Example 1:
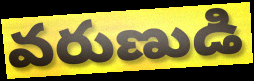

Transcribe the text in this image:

వరుణుడి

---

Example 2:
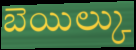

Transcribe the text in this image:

బెయిల్కు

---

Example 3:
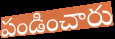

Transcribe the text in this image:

పండించారు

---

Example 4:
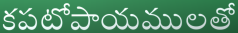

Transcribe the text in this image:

కపటోపాయములతో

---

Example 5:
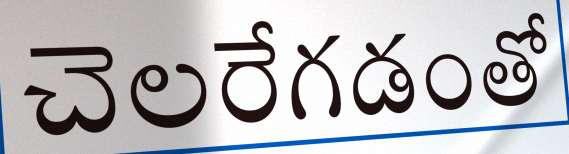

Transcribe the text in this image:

చెలరేగడంతో